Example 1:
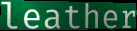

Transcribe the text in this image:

leather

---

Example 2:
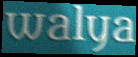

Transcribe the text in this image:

walya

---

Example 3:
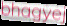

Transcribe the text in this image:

bhagyej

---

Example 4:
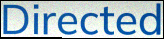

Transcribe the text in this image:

Directed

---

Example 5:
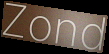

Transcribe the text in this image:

Zond